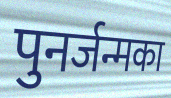
पुनर्जन्मका